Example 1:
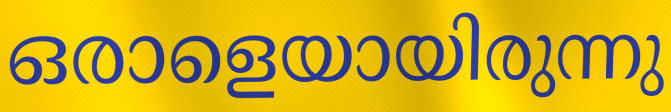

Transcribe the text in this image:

ഒരാളെയായിരുന്നു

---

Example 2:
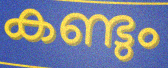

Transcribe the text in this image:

കണ്ടും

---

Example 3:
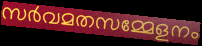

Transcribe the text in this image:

സർവമതസമ്മേളനം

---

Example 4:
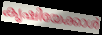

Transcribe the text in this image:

കൃഷിയേക്കാൾ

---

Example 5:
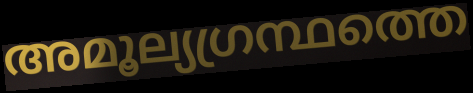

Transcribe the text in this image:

അമൂല്യഗ്രന്ഥത്തെ